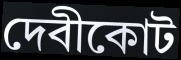
দেবীকোট